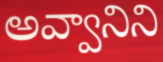
అవ్వానిని